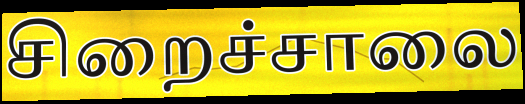
சிறைச்சாலை